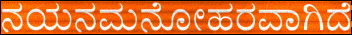
ನಯನಮನೋಹರವಾಗಿದೆ